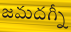
జమదగ్నీ